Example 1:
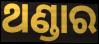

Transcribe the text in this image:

ଥଣ୍ଡାର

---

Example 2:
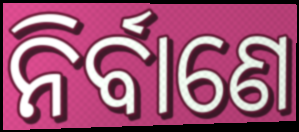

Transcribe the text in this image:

ନିର୍ବାଣେ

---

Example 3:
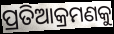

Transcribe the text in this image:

ପ୍ରତିଆକ୍ରମଣକୁ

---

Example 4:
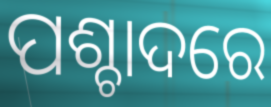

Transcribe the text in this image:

ପଶ୍ଚାଦରେ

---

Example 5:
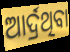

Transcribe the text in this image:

ଆର୍ଦ୍ରଥିବା